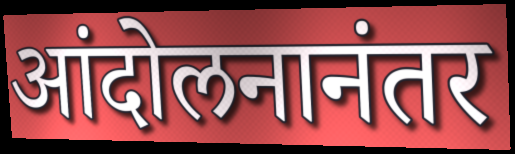
आंदोलनानंतर